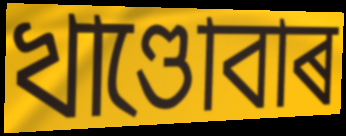
খাণ্ডোবাৰ